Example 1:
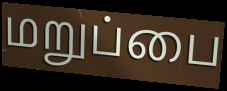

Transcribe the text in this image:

மறுப்பை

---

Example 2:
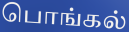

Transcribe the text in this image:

பொங்கல்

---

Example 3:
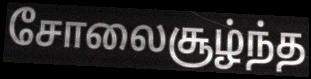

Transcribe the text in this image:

சோலைசூழ்ந்த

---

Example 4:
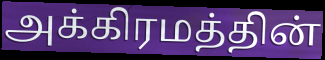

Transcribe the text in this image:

அக்கிரமத்தின்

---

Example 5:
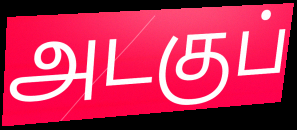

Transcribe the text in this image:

அடகுப்